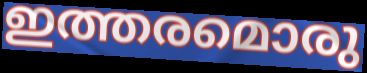
ഇത്തരമൊരു